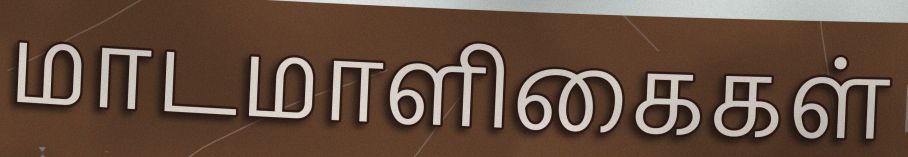
மாடமாளிகைகள்